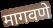
मागवणे